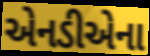
એનડીએના